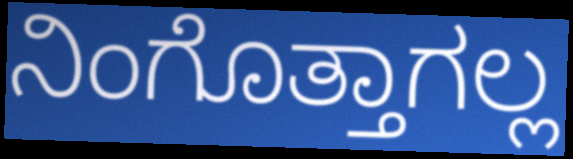
ನಿಂಗೊತ್ತಾಗಲ್ಲ